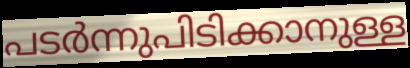
പടർന്നുപിടിക്കാനുള്ള